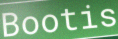
Bootis